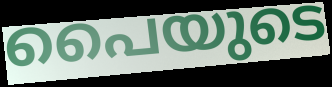
പൈയുടെ